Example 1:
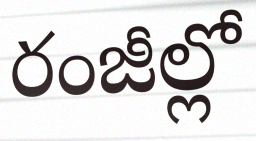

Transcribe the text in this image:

రంజీల్లో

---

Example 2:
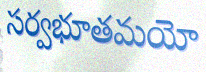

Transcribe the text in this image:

సర్వభూతమయో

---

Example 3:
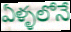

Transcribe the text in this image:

ఏళ్ళలోనే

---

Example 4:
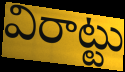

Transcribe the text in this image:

విరాట్టు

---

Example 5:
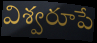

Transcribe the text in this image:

విశ్వరూపే